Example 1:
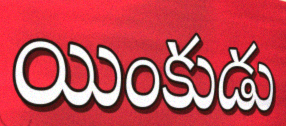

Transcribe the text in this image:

యింకుడు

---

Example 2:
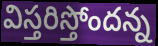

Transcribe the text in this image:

విస్తరిస్తోందన్న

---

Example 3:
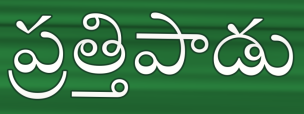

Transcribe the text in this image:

ప్రత్తిపాడు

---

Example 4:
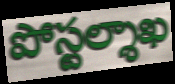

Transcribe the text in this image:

పోస్టల్శాఖ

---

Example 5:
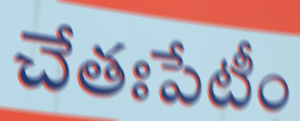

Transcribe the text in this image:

చేతఃపేటీం